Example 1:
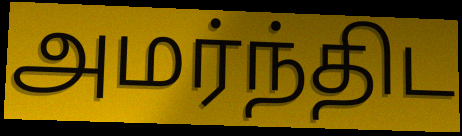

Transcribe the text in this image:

அமர்ந்திட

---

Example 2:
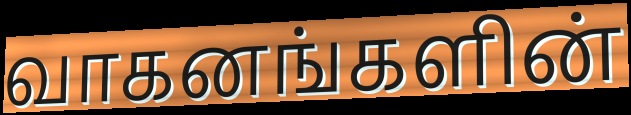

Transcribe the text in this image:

வாகனங்களின்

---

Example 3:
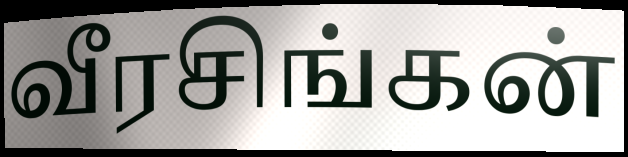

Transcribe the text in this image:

வீரசிங்கன்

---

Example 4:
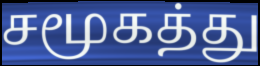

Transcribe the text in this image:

சமூகத்து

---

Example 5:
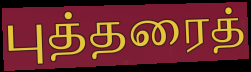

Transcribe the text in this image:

புத்தரைத்